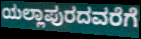
ಯಲ್ಲಾಪುರದವರೆಗೆ